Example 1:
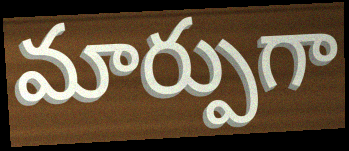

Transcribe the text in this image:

మార్పుగా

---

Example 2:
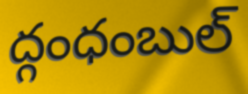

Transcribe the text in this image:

ద్గంధంబుల్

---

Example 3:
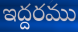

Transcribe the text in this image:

ఇద్దరము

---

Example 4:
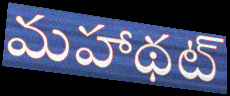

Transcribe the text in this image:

మహాథట్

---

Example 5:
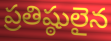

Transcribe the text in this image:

ప్రతిష్ఠులైన